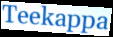
Teekappa